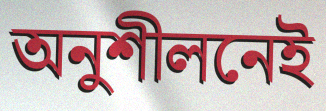
অনুশীলনেই